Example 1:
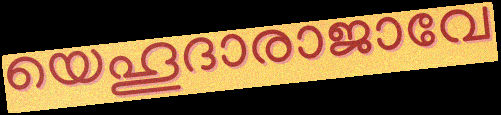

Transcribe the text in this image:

യെഹൂദാരാജാവേ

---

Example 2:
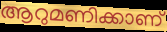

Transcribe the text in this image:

ആറുമണിക്കാണ്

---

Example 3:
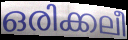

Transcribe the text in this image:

ഒരിക്കലീ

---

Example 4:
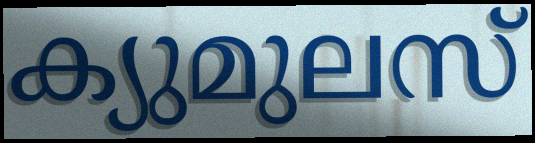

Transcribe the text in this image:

ക്യുമുലസ്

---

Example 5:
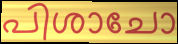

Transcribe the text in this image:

പിശാചോ